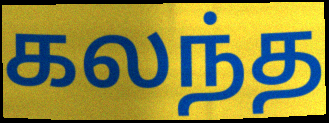
கலந்த